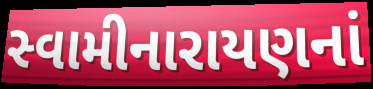
સ્વામીનારાયણનાં